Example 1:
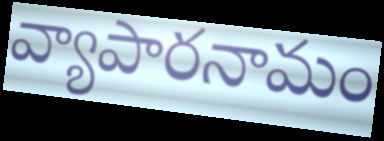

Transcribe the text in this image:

వ్యాపారనామం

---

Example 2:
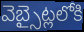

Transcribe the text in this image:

వెబ్సైట్లలోకి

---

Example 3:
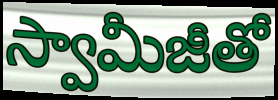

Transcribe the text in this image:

స్వామీజీతో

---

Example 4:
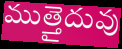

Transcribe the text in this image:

ముత్తైదువు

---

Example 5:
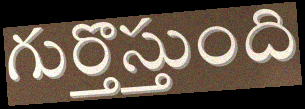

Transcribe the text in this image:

గుర్తొస్తుంది